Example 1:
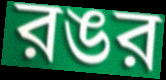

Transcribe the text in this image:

রঙর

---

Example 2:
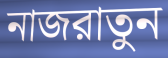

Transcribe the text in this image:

নাজরাতুন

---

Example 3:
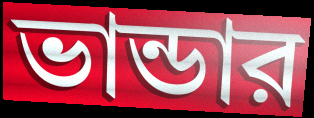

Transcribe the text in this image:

ভান্ডার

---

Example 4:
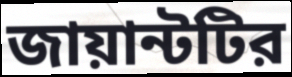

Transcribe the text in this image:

জায়ান্টটির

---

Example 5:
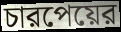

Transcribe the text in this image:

চারপেয়ের